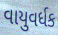
વાયુવર્ધક